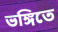
ভঙ্গিতে